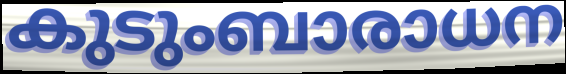
കുടുംബാരാധന